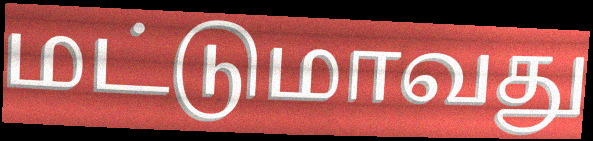
மட்டுமாவது